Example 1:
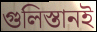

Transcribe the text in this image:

গুলিস্তানই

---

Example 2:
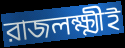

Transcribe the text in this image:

রাজলক্ষ্মীই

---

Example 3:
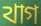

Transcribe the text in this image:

থাগ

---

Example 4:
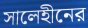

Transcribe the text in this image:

সালেহীনের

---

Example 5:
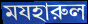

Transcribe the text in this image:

মযহারুল